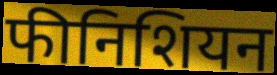
फीनिशियन